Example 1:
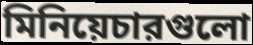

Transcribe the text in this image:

মিনিয়েচারগুলো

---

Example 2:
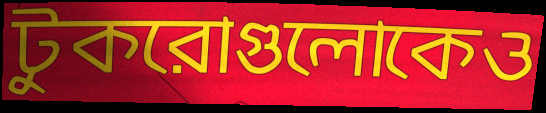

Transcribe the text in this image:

টুকরোগুলোকেও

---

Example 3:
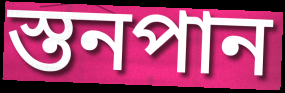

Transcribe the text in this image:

স্তনপান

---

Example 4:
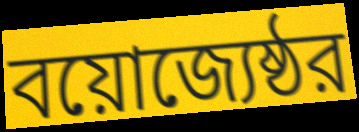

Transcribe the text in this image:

বয়োজ্যেষ্ঠর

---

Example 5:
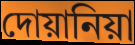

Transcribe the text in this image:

দোয়ানিয়া